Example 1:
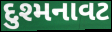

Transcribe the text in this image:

દુશ્મનાવટ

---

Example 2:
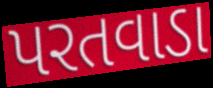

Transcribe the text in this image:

પરતવાડા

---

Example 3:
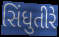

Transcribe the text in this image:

સિંધુતીરે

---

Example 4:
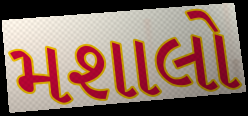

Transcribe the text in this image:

મશાલો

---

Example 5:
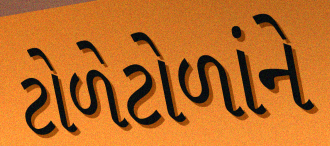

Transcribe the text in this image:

ટોળેટોળાંને